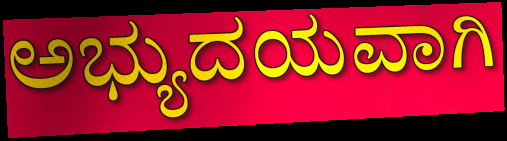
ಅಭ್ಯುದಯವಾಗಿ